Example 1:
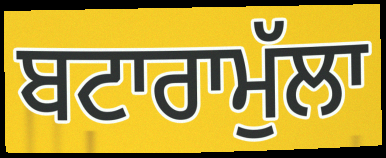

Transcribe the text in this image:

ਬਟਾਰਾਮੁੱਲਾ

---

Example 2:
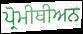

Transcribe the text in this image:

ਪ੍ਰੋਮੀਥੀਅਨ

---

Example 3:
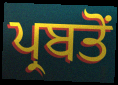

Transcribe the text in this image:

ਪ੍ਰਬਤੋਂ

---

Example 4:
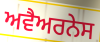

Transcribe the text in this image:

ਅਵੈਅਰਨੇਸ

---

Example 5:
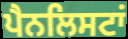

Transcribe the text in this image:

ਪੈਨਲਿਸਟਾਂ